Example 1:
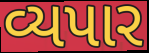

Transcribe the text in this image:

વ્યપાર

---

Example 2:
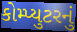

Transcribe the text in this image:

કોમ્પ્યુટરનું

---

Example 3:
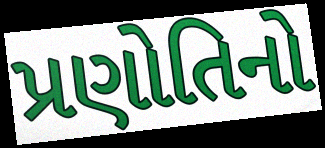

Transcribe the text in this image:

પ્રણોતિનો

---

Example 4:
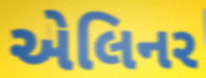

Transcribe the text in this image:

એલિનર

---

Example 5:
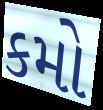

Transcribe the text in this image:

કમો